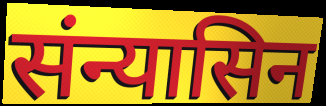
संन्यासिन